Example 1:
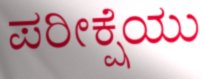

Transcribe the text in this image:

ಪರೀಕ್ಷೆಯು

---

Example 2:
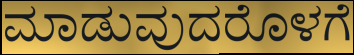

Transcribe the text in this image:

ಮಾಡುವುದರೊಳಗೆ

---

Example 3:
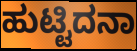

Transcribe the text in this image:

ಹುಟ್ಟಿದನಾ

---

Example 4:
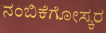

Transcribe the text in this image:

ನಂಬಿಕೆಗೋಸ್ಕರ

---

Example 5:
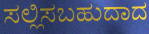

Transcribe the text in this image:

ಸಲ್ಲಿಸಬಹುದಾದ